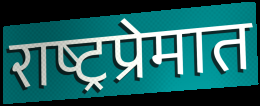
राष्ट्रप्रेमात